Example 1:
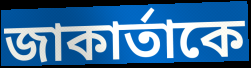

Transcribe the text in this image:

জাকার্তাকে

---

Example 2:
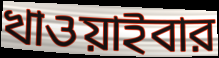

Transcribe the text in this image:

খাওয়াইবার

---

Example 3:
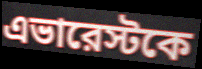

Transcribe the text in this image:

এভারেস্টকে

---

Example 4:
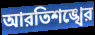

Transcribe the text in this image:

আরতিশঙ্খের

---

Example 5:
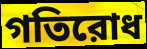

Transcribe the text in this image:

গতিরোধ